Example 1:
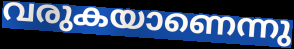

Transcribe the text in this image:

വരുകയാണെന്നു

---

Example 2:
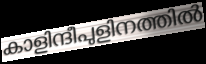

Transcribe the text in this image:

കാളിന്ദീപുളിനത്തിൽ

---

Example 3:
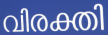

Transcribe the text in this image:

വിരക്തി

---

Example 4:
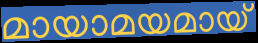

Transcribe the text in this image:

മായാമയമായ്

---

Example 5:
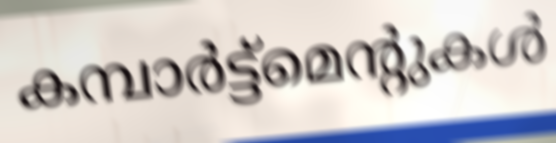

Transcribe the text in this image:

കമ്പാർട്ട്മെന്റുകൾ